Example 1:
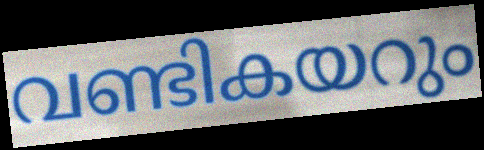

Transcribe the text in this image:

വണ്ടികയറും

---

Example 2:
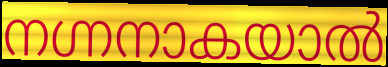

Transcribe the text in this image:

നഗ്നനാകയാൽ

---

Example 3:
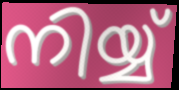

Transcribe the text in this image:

നിയ്യ്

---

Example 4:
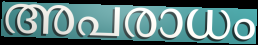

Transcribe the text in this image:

അപരാധം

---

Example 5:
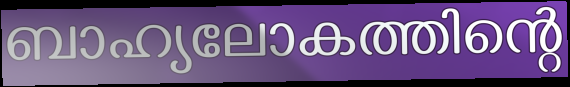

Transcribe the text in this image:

ബാഹ്യലോകത്തിന്റെ